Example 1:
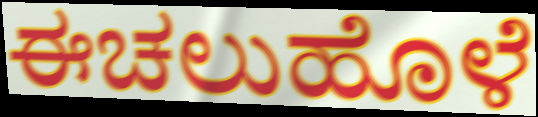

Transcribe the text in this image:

ಈಚಲುಹೊಳೆ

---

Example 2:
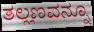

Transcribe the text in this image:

ತಲ್ಲಣವನ್ನೂ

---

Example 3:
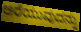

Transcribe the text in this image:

ಅರೆಯುವುದನ್ನು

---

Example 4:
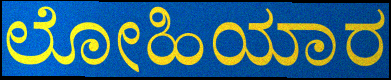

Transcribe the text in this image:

ಲೋಹಿಯಾರ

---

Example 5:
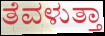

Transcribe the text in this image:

ತೆವಳುತ್ತಾ